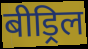
बीड्रिल